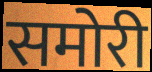
समोरी